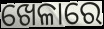
ଖେଳାରେ